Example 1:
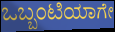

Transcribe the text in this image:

ಒಬ್ಬಂಟಿಯಾಗೇ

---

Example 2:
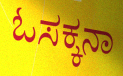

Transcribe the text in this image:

ಓಸಕ್ಕನಾ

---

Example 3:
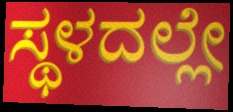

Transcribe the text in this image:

ಸ್ಥಳದಲ್ಲೇ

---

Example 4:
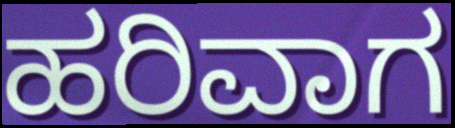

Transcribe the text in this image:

ಹರಿವಾಗ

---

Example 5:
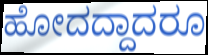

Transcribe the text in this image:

ಹೋದದ್ದಾದರೂ